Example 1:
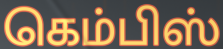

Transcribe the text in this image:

கெம்பிஸ்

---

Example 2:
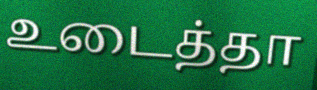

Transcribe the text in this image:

உடைத்தா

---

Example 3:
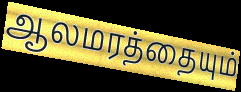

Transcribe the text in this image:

ஆலமரத்தையும்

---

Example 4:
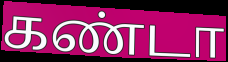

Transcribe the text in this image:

கண்டா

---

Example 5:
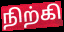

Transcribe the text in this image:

நிற்கி